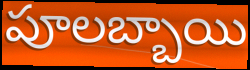
పూలబ్బాయి